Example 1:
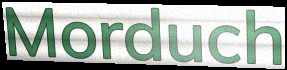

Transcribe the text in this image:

Morduch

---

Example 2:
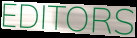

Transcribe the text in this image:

EDITORS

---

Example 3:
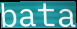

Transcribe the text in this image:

bata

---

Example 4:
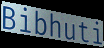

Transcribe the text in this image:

Bibhuti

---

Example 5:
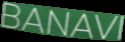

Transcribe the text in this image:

BANAVI